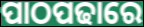
ପାଠପଢାରେ